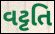
વટ્ટતિ